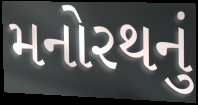
મનોરથનું